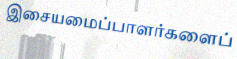
இசையமைப்பாளர்களைப்